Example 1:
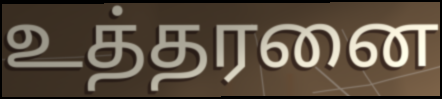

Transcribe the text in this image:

உத்தரனை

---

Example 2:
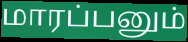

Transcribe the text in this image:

மாரப்பனும்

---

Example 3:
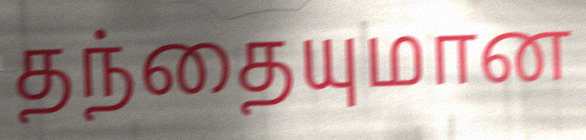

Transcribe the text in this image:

தந்தையுமான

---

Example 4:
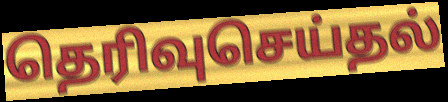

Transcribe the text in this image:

தெரிவுசெய்தல்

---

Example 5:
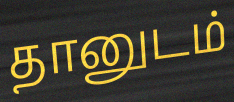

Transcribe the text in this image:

தானுடம்